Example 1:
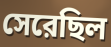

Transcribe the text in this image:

সেরেছিল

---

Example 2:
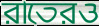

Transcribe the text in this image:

রাতেরও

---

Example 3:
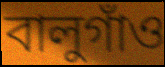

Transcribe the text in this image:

বালুগাঁও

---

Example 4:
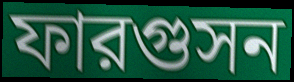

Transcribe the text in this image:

ফারগুসন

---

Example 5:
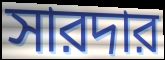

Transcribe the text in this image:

সারদার